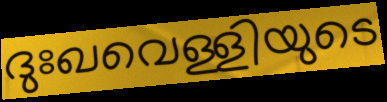
ദുഃഖവെള്ളിയുടെ